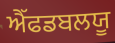
ਐੱਫਡਬਲਯੂ